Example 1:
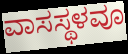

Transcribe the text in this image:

ವಾಸಸ್ಥಳವೂ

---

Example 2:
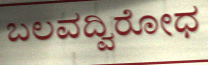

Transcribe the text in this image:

ಬಲವದ್ವಿರೋಧ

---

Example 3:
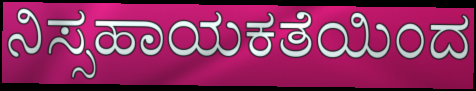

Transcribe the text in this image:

ನಿಸ್ಸಹಾಯಕತೆಯಿಂದ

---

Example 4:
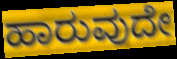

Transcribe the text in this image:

ಹಾರುವುದೇ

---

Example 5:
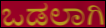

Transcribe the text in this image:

ಒಡಲಾಗಿ